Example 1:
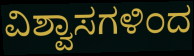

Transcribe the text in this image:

ವಿಶ್ವಾಸಗಳಿಂದ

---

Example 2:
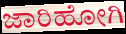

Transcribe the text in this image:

ಜಾರಿಹೋಗಿ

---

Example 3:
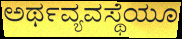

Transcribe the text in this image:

ಅರ್ಥವ್ಯವಸ್ಥೆಯೂ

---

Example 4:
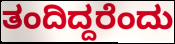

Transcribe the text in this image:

ತಂದಿದ್ದರೆಂದು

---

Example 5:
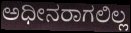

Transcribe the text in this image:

ಅಧೀನರಾಗಲಿಲ್ಲ